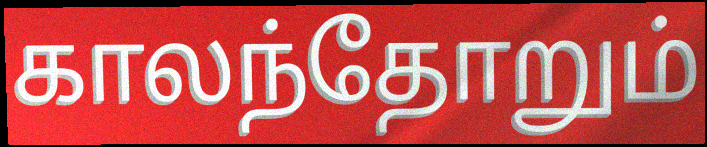
காலந்தோறும்